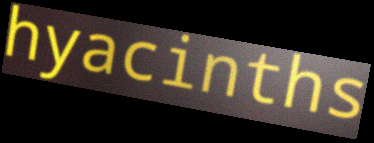
hyacinths